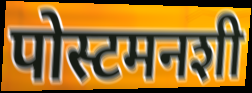
पोस्टमनशी